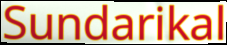
Sundarikal